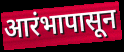
आरंभापासून